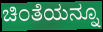
ಚಿಂತೆಯನ್ನೂ